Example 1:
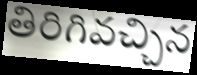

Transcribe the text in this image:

తిరిగివచ్చిన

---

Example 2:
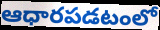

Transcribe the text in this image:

ఆధారపడటంలో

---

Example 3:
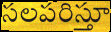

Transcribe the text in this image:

సలపరిస్తూ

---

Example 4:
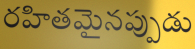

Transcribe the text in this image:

రహితమైనప్పుడు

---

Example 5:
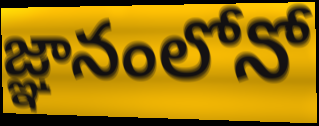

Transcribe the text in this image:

జ్ఞానంలోనో